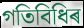
গতিবিধিৰ